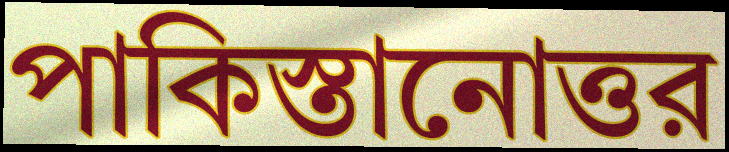
পাকিস্তানোত্তর